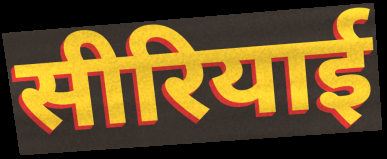
सीरियाई